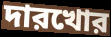
দারখোর